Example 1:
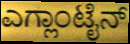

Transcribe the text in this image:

ಎಗ್ಲಾಂಟೈನ್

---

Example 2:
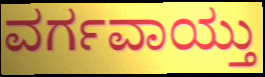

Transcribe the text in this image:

ವರ್ಗವಾಯ್ತು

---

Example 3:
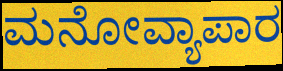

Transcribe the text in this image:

ಮನೋವ್ಯಾಪಾರ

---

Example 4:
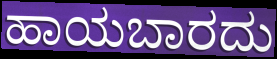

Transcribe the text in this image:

ಹಾಯಬಾರದು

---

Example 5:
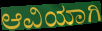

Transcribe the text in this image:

ಆವಿಯಾಗಿ